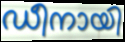
ഡീനായി